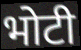
भोटी